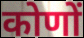
कोणों